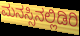
ಮನಸ್ಸಿನಲ್ಲಿಡಿರಿ